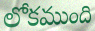
లోకముంది